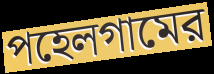
পহেলগামের